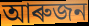
আৰুজন